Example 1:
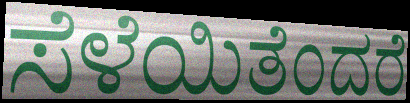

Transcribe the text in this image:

ಸೆಳೆಯಿತೆಂದರೆ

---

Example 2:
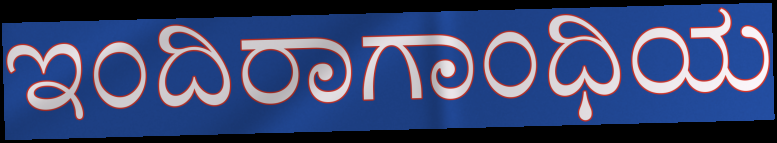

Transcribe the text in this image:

ಇಂದಿರಾಗಾಂಧಿಯ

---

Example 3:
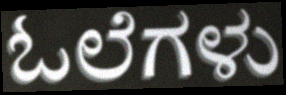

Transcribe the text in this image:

ಓಲೆಗಳು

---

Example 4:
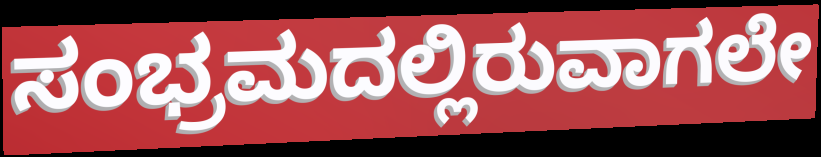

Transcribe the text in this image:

ಸಂಭ್ರಮದಲ್ಲಿರುವಾಗಲೇ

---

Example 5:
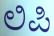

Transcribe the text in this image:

ಲಿಪಿ